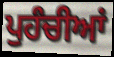
ਪੁਹੰਚੀਆਂ